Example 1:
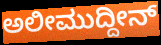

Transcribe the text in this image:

ಅಲೀಮುದ್ದೀನ್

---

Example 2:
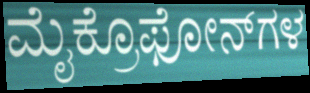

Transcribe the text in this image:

ಮೈಕ್ರೊಫೋನ್‌ಗಳ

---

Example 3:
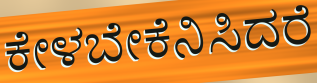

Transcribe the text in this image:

ಕೇಳಬೇಕೆನಿಸಿದರೆ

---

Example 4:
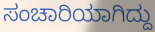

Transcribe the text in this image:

ಸಂಚಾರಿಯಾಗಿದ್ದು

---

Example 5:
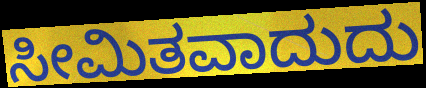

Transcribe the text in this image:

ಸೀಮಿತವಾದುದು